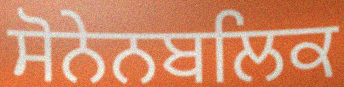
ਸੋਨੇਨਬਲਿਕ